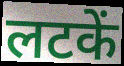
लटकें